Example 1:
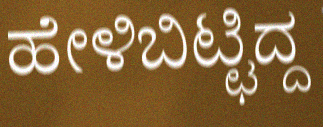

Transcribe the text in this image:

ಹೇಳಿಬಿಟ್ಟಿದ್ದ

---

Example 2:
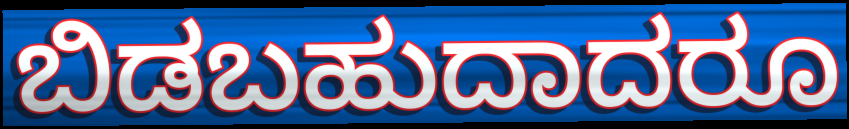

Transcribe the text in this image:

ಬಿಡಬಹುದಾದರೂ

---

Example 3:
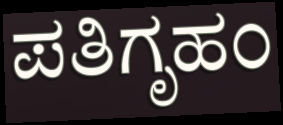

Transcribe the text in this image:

ಪತಿಗೃಹಂ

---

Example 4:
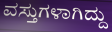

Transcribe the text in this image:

ವಸ್ತುಗಳಾಗಿದ್ದು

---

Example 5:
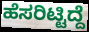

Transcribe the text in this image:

ಹೆಸರಿಟ್ಟಿದ್ದೆ